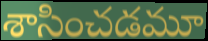
శాసించడమూ